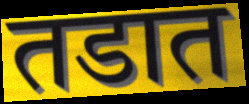
तडात